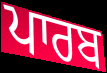
ਪਾਰਬ